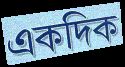
একদিক